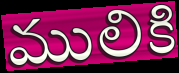
ములికి